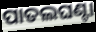
ପାତଲଘଣ୍ଟା